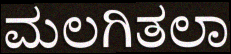
ಮಲಗಿತಲಾ